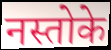
नस्तोके